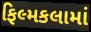
ફિલ્મકલામાં